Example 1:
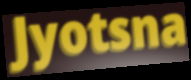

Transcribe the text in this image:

Jyotsna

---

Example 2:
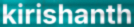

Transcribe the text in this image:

kirishanth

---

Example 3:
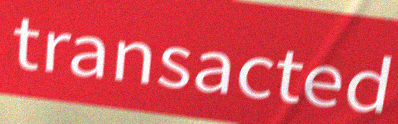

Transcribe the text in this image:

transacted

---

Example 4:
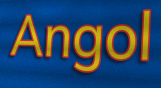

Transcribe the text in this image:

Angol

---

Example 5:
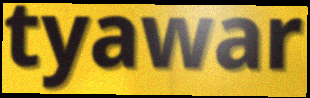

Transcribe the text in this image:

tyawar